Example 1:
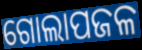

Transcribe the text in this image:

ଗୋଲାପଜଳ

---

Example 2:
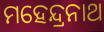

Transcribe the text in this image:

ମହେନ୍ଦ୍ରନାଥ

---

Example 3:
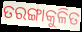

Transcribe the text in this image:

ତରଙ୍ଗାକୁଳିତ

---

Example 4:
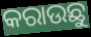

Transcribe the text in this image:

କରାଉଛୁ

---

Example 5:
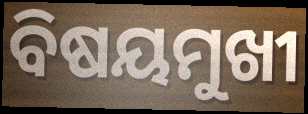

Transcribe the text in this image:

ବିଷୟମୁଖୀ